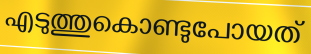
എടുത്തുകൊണ്ടുപോയത്